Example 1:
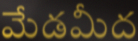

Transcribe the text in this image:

మేడమీద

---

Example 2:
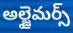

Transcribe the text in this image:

అల్జైమర్స్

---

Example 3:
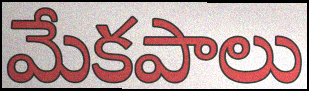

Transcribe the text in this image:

మేకపాలు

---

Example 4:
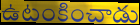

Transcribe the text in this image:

ఉటంకించాడు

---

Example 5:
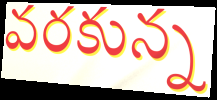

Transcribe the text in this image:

వరకున్న